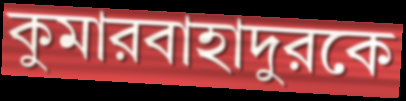
কুমারবাহাদুরকে